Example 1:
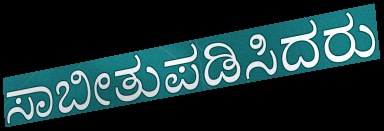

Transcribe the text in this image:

ಸಾಬೀತುಪಡಿಸಿದರು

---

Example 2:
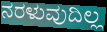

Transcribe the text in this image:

ನರಳುವುದಿಲ್ಲ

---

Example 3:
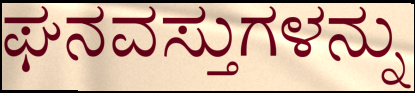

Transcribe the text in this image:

ಘನವಸ್ತುಗಳನ್ನು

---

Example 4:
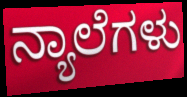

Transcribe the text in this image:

ನ್ಯಾಲೆಗಳು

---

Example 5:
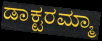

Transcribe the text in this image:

ಡಾಕ್ಟರಮ್ಮಾ